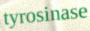
tyrosinase